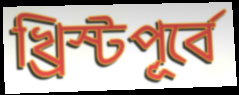
খ্রিস্টপূর্বে